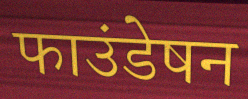
फाउंडेषन